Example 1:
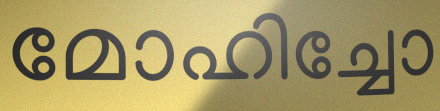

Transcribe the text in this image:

മോഹിച്ചോ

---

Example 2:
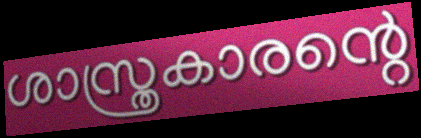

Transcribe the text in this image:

ശാസ്ത്രകാരന്റെ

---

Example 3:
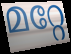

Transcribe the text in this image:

മറ്റേ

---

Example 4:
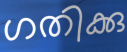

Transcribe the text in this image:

ഗതിക്കു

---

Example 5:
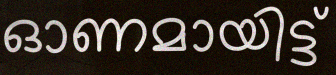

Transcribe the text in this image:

ഓണമായിട്ട്